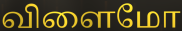
விளைமோ